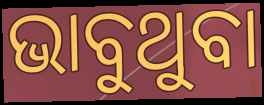
ଭାବୁଥୁବା